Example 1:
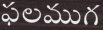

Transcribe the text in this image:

ఫలముగ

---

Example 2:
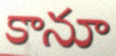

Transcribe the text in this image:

కానూ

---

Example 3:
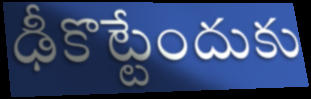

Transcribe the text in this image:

ఢీకొట్టేందుకు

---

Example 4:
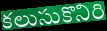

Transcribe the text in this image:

కలుసుకొనిరి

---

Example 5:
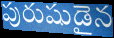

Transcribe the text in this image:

పురుషుడైన